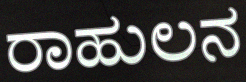
ರಾಹುಲನ